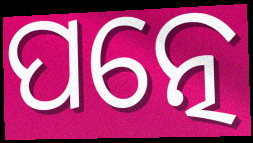
ପତ୍ନେ